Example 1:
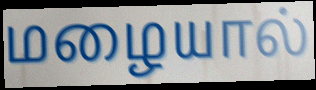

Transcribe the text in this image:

மழையால்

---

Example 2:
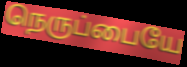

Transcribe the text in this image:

நெருப்பையே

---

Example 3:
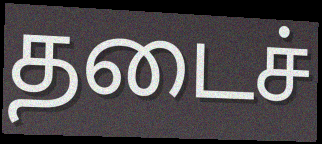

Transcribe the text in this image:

தடைச்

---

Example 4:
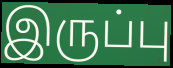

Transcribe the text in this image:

இருப்பு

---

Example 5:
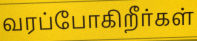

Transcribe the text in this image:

வரப்போகிறீர்கள்